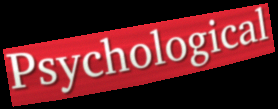
Psychological